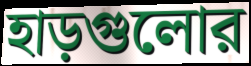
হাড়গুলোর